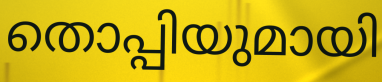
തൊപ്പിയുമായി